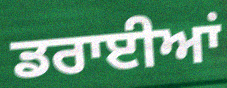
ਡਰਾਈਆਂ